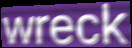
wreck